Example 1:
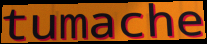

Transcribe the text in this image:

tumache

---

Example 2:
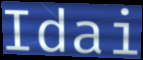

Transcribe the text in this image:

Idai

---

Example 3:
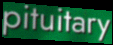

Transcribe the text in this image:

pituitary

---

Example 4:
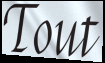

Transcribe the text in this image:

Tout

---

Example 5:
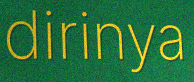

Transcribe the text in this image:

dirinya